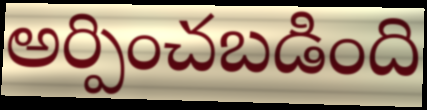
అర్పించబడింది